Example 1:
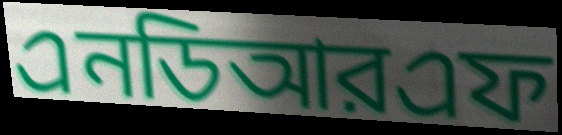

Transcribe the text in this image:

এনডিআরএফ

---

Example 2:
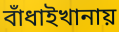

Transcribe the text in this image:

বাঁধাইখানায়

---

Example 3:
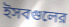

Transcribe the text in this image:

ইসবগুলের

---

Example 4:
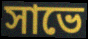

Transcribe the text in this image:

সাভে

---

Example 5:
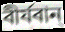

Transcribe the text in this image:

বীর্যবান্